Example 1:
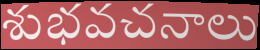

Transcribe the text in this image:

శుభవచనాలు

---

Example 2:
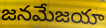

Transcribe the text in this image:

జనమేజయా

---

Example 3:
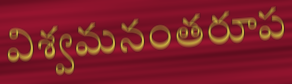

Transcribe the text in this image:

విశ్వమనంతరూప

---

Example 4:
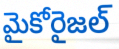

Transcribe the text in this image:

మైకోరైజల్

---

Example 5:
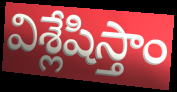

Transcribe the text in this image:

విశ్లేషిస్తాం